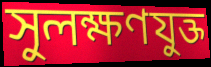
সুলক্ষণযুক্ত